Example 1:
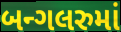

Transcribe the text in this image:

બન્ગલરુમાં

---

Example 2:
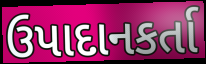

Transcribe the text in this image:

ઉપાદાનકર્તા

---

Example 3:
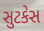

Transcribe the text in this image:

સુટકેસ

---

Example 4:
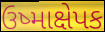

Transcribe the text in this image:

ઉષ્માક્ષેપક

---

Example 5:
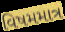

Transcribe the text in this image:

વિષમમાત્ર